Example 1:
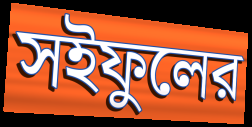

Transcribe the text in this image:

সইফুলের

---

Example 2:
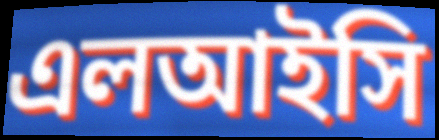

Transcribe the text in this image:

এলআইসি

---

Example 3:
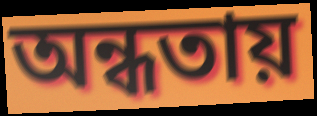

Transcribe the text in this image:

অন্ধতায়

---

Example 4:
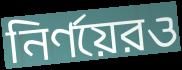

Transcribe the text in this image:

নির্ণয়েরও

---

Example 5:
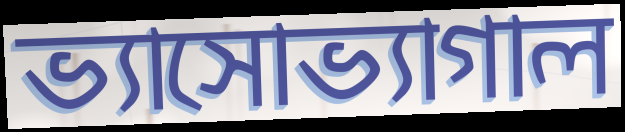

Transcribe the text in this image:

ভ্যাসোভ্যাগাল